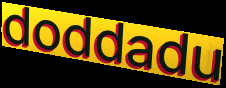
doddadu